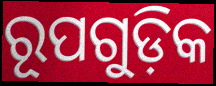
ରୂପଗୁଡ଼ିକ